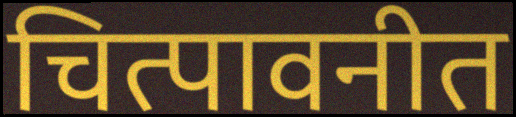
चित्पावनीत